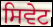
ਸਿਵੇਟ